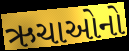
ઋચાઓનો